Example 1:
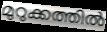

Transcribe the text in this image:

മുറുക്കത്തിൽ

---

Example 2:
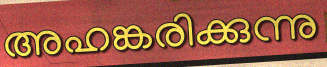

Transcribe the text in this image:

അഹങ്കരിക്കുന്നു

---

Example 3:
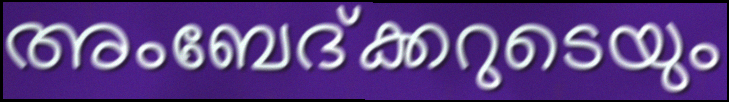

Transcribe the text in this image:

അംബേദ്ക്കറുടെയും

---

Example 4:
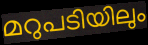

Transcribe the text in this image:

മറുപടിയിലും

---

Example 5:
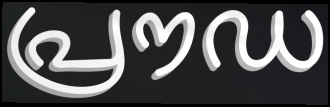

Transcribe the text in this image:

പ്രൗഡ